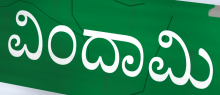
ವಿಂದಾಮಿ